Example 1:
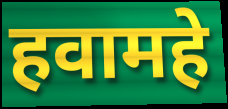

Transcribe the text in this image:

हवामहे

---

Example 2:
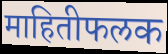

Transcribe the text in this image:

माहितीफलक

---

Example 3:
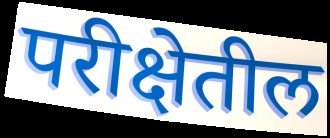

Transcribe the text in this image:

परीक्षेतील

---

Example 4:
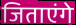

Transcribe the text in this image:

जिताएंगे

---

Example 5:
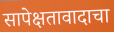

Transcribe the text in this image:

सापेक्षतावादाचा